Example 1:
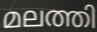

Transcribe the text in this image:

മലത്തി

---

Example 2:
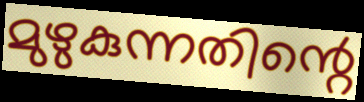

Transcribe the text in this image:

മുഴുകുന്നതിന്റെ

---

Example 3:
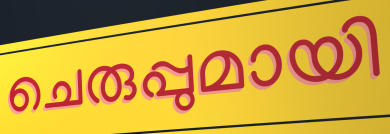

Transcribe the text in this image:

ചെരുപ്പുമായി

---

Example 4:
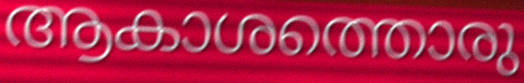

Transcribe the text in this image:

ആകാശത്തൊരു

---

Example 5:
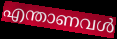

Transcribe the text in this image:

എന്താണവൾ